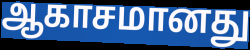
ஆகாசமானது